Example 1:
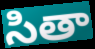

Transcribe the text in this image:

సితా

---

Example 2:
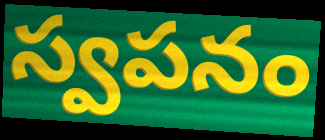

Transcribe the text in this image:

స్వపనం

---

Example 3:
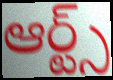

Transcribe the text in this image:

ఆర్ట్స్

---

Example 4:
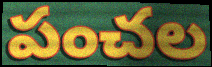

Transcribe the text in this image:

పంచల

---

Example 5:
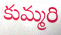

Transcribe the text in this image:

కుమ్మరి